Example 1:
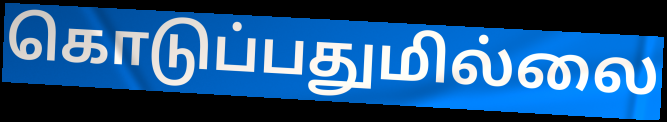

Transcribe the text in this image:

கொடுப்பதுமில்லை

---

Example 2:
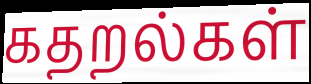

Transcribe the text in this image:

கதறல்கள்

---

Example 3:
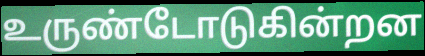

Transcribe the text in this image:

உருண்டோடுகின்றன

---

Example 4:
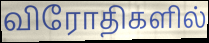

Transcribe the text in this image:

விரோதிகளில்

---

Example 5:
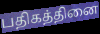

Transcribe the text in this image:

பதிகத்தினை